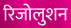
रिजोलुशन